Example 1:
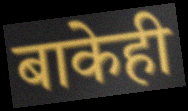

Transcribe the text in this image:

बाकेही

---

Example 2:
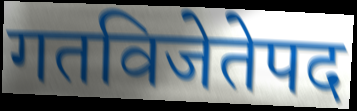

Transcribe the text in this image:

गतविजेतेपद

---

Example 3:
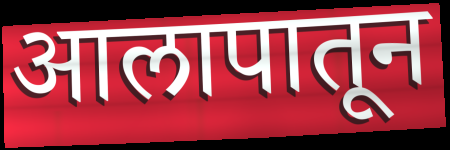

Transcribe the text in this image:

आलापातून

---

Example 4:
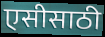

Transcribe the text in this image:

एसीसाठी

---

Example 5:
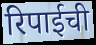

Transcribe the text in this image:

रिपाईची